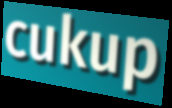
cukup